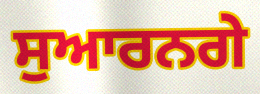
ਸੁਆਰਨਗੇ